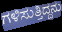
ಗಳಿಸುತ್ತಿದ್ದನು